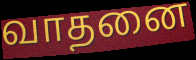
வாதனை